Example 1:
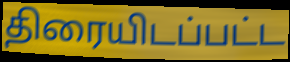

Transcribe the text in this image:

திரையிடப்பட்ட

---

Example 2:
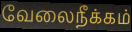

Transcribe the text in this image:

வேலைநீக்கம்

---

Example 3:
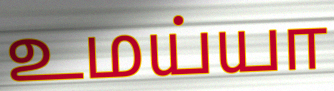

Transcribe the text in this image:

உமய்யா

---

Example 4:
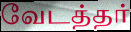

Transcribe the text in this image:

வேடத்தர்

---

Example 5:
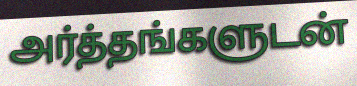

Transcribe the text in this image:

அர்த்தங்களுடன்